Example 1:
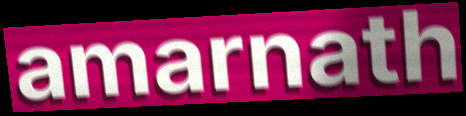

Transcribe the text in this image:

amarnath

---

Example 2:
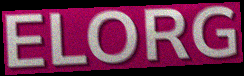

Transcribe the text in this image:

ELORG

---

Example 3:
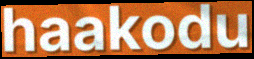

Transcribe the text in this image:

haakodu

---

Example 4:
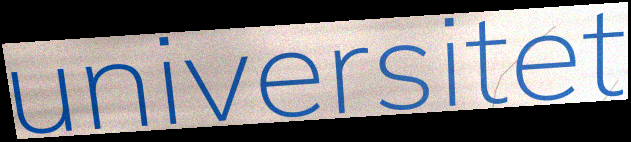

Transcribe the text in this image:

universitet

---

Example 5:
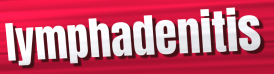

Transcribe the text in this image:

lymphadenitis